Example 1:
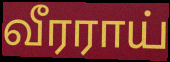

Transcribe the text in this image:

வீரராய்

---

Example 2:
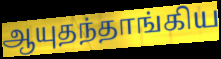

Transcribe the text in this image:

ஆயுதந்தாங்கிய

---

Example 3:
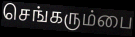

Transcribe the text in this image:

செங்கரும்பை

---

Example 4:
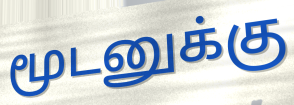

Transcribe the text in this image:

மூடனுக்கு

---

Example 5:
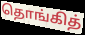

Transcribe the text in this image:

தொங்கித்